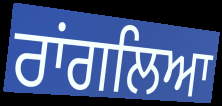
ਰਾਂਗਲਿਆ